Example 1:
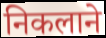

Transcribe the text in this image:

निकलाने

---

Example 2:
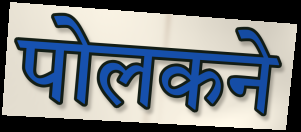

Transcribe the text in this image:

पोलकने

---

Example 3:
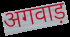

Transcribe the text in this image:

अगवाड़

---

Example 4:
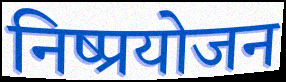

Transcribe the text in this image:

निष्प्रयोजन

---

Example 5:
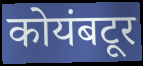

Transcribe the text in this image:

कोयंबटूर